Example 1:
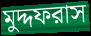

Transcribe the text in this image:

মুদ্দফরাস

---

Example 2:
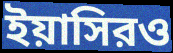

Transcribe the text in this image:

ইয়াসিরও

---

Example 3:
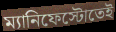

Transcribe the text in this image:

ম্যানিফেস্টোতেই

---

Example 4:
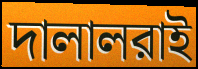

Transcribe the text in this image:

দালালরাই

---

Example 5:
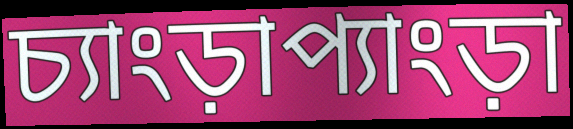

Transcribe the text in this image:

চ্যাংড়াপ্যাংড়া